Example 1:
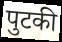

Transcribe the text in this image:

पुटकी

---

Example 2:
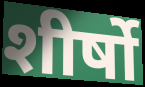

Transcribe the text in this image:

शीर्षो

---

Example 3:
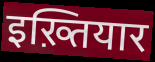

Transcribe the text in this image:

इख़्तियार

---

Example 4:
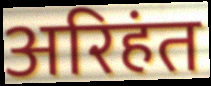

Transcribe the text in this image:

अरिहंत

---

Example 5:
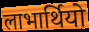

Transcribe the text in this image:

लाभार्थियो